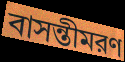
বাসন্তীমরণ